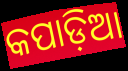
କପାଡ଼ିଆ